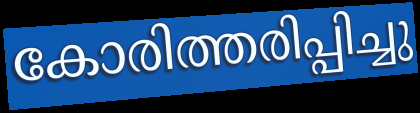
കോരിത്തരിപ്പിച്ചു